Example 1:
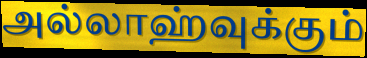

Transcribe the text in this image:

அல்லாஹ்வுக்கும்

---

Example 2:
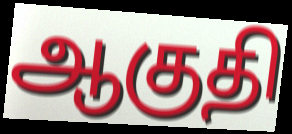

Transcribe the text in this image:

ஆகுதி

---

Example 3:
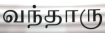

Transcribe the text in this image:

வந்தாரு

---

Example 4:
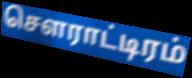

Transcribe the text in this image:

சௌராட்டிரம்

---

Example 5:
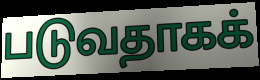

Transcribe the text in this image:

படுவதாகக்